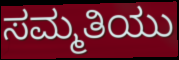
ಸಮ್ಮತಿಯು